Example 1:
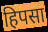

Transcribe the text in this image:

हिपसा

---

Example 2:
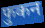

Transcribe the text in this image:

फुकन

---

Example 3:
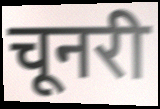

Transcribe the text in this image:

चूनरी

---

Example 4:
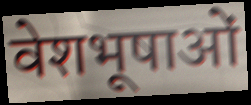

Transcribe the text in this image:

वेशभूषाओं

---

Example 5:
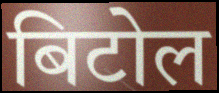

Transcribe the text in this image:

बिटोल